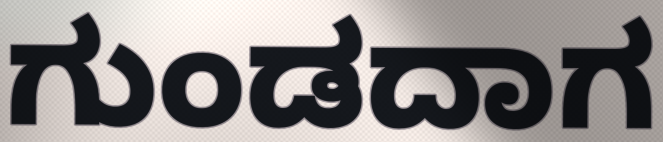
ಗುಂಡದಾಗ